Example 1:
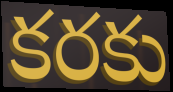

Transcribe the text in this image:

కరకు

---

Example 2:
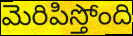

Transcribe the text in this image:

మెరిపిస్తోంది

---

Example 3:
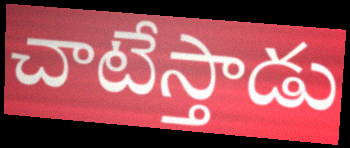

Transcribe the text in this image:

చాటేస్తాడు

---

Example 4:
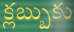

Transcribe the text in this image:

క్లబ్బుకు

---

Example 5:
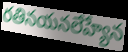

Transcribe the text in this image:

రతినయనలేహ్యేన